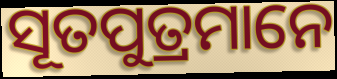
ସୂତପୁତ୍ରମାନେ